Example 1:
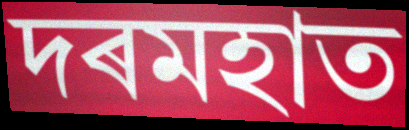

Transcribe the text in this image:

দৰমহাত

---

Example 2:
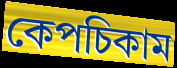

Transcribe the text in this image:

কেপচিকাম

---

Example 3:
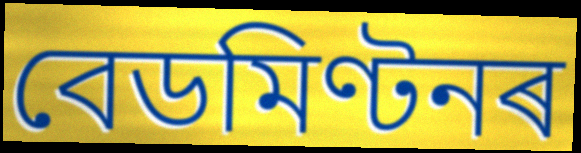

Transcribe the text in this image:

বেডমিণ্টনৰ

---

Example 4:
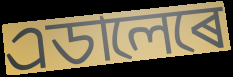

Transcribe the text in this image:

এডালেৰে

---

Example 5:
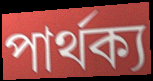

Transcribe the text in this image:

পাৰ্থক্য